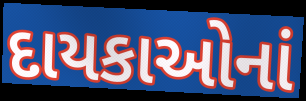
દાયકાઓનાં